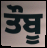
ਤੌਬੂ